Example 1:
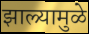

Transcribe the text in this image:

झाल्यामुळे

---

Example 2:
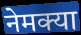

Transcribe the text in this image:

नेमक्या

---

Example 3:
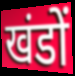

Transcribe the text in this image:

खंडों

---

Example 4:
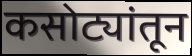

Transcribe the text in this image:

कसोट्यांतून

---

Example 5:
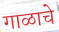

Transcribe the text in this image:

गाळाचे